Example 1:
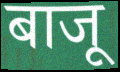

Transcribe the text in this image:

बाजू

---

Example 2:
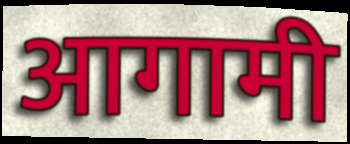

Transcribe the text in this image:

आगामी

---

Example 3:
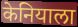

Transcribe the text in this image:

केनियाला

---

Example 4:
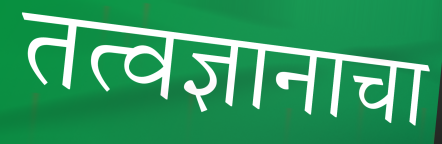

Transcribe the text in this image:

तत्वज्ञानाचा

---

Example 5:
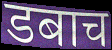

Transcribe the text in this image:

डबाच